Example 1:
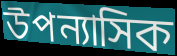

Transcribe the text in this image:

উপন্যাসিক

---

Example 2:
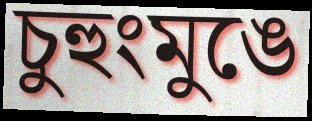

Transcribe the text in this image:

চুহুংমুঙে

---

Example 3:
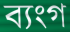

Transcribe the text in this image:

ব্যংগ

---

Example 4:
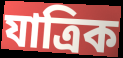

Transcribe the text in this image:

যাত্ৰিক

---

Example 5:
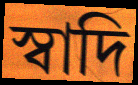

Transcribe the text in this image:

স্বাদি